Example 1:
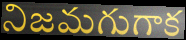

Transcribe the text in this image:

నిజమగుగాక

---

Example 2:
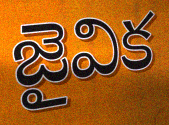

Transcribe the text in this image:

జైవిక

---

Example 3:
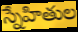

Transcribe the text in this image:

స్నేహితుల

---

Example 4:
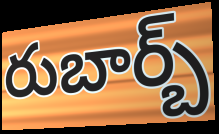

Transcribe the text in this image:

రుబార్బ్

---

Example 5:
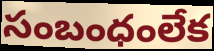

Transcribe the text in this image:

సంబంధంలేక